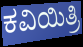
ಕವಿಯಿತ್ರಿ